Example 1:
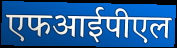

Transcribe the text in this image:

एफआईपीएल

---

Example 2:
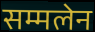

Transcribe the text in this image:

सम्मलेन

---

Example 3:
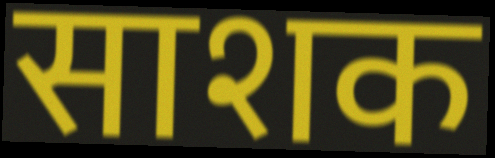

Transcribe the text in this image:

साशक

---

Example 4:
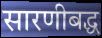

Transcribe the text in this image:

सारणीबद्ध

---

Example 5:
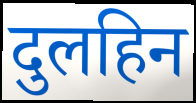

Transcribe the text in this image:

दुलहिन